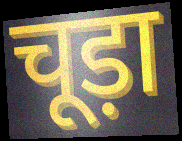
चूड़ा